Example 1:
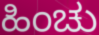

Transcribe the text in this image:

ಹಿಂಚು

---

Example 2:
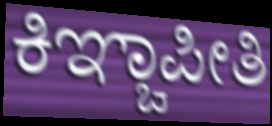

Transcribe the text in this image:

ಕಿಞ್ಚಾಪೀತಿ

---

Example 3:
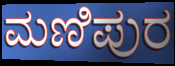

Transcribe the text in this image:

ಮಣಿಪುರ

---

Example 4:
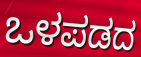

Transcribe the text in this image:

ಒಳಪಡದ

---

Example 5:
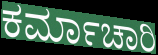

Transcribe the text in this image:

ಕರ್ಮಾಚಾರಿ